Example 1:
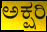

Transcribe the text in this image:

ಅಕ್ಷರಿ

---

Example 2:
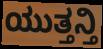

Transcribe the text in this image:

ಯುತ್ತನ್ತಿ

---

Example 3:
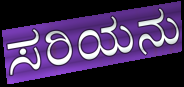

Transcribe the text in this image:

ಸರಿಯನು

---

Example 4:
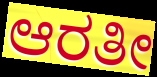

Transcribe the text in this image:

ಆರತೀ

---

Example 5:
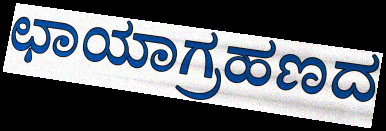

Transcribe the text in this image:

ಛಾಯಾಗ್ರಹಣದ